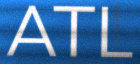
ATL